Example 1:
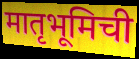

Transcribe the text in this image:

मातृभूमिची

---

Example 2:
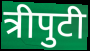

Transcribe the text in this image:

त्रीपुटी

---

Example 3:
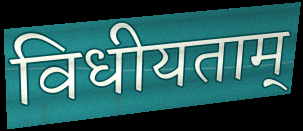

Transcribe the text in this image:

विधीयताम्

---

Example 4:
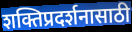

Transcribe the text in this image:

शक्तिप्रदर्शनासाठी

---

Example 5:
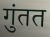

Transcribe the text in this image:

गुंतत